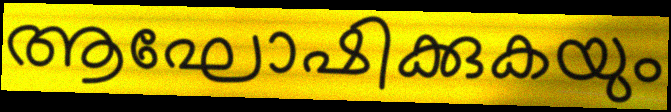
ആഘോഷിക്കുകയും